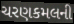
ચરણકમલની